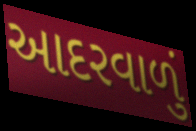
આદરવાળું